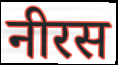
नीरस